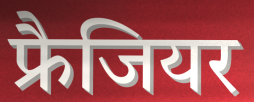
फ्रैजियर